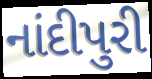
નાંદીપુરી